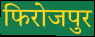
फिरोजपुर